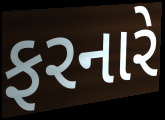
ફરનારે